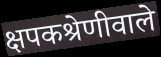
क्षपकश्रेणीवाले